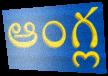
ఆంగ్ల